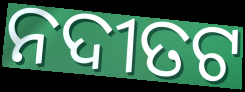
ନଦୀତଟ